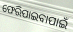
ଫେରିପାଇବାପାଇଁ